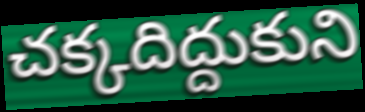
చక్కదిద్దుకుని